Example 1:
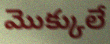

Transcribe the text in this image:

మొక్కులే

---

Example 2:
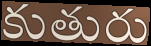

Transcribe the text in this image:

కుతురు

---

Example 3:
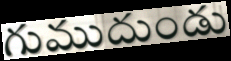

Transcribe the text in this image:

గుముదుండు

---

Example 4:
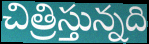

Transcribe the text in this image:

చిత్రిస్తున్నది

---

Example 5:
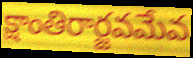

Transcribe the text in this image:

క్షాంతిరార్జవమేవ